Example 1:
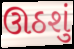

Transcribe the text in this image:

ઊઠશું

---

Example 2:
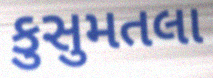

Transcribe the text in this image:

કુસુમતલા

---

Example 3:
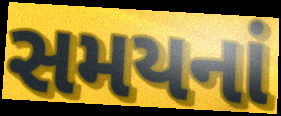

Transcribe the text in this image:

સમયનાં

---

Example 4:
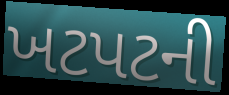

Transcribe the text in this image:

ખટપટની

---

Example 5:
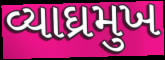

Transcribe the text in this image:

વ્યાઘ્રમુખ